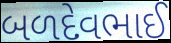
બળદેવભાઈ